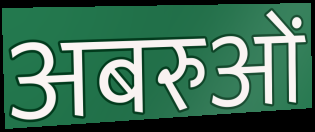
अबरुओं